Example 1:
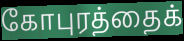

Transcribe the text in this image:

கோபுரத்தைக்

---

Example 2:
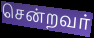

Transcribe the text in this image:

சென்றவர்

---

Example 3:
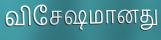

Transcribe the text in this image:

விசேஷமானது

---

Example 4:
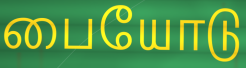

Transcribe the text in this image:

பையோடு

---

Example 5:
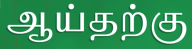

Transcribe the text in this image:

ஆய்தற்கு